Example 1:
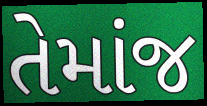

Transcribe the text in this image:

તેમાંજ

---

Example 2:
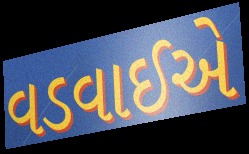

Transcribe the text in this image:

વડવાઈએ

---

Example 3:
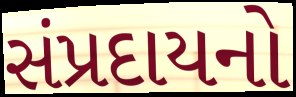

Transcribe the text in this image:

સંપ્રદાયનો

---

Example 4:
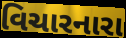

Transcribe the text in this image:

વિચારનારા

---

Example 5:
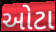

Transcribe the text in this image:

ઓટા